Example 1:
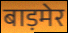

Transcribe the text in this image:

बाड़मेर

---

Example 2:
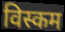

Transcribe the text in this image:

विस्कम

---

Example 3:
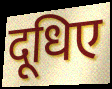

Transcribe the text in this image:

दूधिए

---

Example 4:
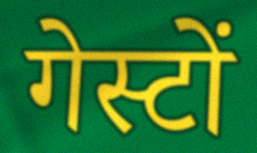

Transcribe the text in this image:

गेस्टों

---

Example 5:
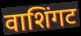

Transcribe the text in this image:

वाशिंगट